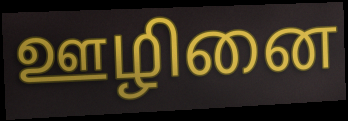
ஊழினை